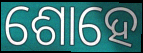
ଶୋହେ